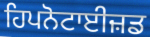
ਹਿਪਨੋਟਾਈਜ਼ਡ